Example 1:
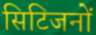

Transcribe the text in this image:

सिटिजनों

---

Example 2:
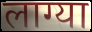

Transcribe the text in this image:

लाग्या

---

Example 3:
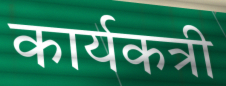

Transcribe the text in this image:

कार्यकत्री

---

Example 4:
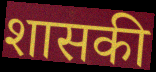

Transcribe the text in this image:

शासकी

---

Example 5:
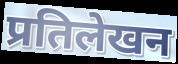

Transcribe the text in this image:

प्रतिलेखन